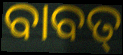
ବାବତ୍